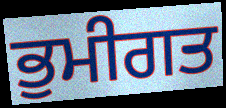
ਭੁਮੀਗਤ